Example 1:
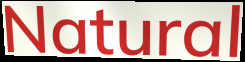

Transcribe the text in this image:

Natural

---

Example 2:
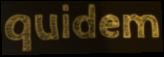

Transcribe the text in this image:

quidem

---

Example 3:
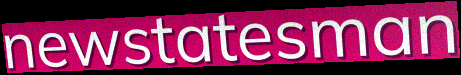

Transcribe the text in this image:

newstatesman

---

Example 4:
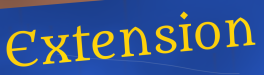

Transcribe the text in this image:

Extension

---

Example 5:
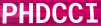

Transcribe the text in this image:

PHDCCI